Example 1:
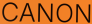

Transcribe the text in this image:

CANON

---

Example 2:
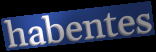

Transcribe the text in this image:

habentes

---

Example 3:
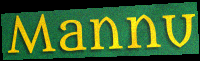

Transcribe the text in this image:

Mannu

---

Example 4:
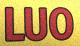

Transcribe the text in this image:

LUO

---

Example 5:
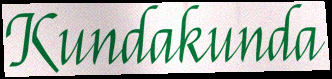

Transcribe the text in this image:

Kundakunda